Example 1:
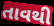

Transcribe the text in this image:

તાવથી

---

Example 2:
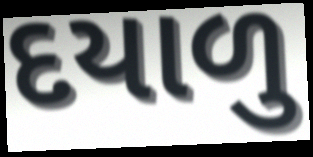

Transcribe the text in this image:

દયાળુ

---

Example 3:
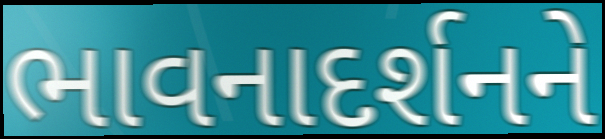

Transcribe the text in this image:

ભાવનાદર્શનને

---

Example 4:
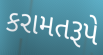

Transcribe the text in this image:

કરામતરૂપે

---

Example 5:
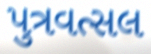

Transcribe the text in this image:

પુત્રવત્સલ